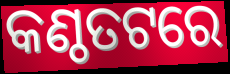
କଣ୍ଠତଟରେ